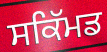
ਸਕਿੱਮਡ